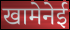
खामेनेई